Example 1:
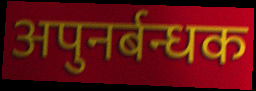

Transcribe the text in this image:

अपुनर्बन्धक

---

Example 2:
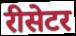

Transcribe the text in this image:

रीसेटर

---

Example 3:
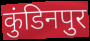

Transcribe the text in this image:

कुंडिनपुर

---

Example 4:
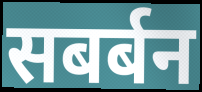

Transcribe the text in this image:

सबर्बन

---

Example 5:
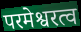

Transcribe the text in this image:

परमेश्वरत्व